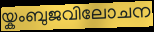
യ്കംബുജവിലോചന